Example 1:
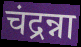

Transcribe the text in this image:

चंद्रन्ना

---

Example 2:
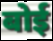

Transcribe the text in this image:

बोई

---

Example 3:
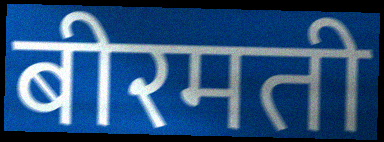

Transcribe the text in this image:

बीरमती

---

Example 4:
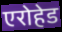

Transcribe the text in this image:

एरोहेड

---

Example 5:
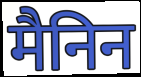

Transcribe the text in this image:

मैनिन